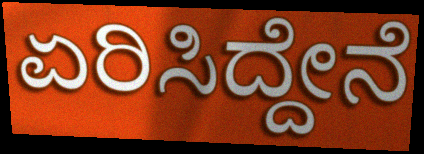
ಏರಿಸಿದ್ದೇನೆ